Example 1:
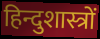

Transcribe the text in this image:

हिन्दुशास्त्रों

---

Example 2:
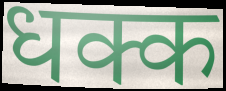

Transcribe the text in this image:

धक्क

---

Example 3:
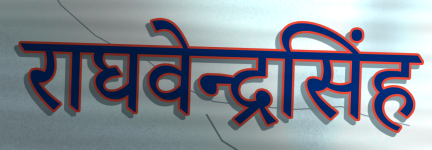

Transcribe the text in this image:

राघवेन्द्रसिंह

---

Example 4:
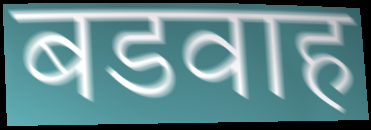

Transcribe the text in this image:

बडवाह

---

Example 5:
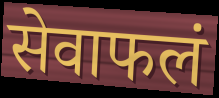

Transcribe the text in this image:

सेवाफलं